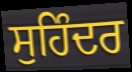
ਸੁਹਿੰਦਰ